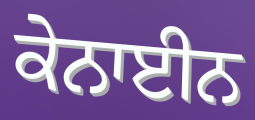
ਕੇਨਾਈਨ